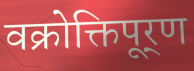
वक्रोक्तिपूर्ण